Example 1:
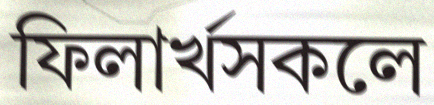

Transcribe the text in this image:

ফিলাৰ্খসকলে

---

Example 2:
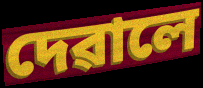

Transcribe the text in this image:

দেৱালে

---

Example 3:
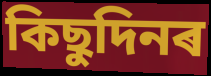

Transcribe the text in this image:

কিছুদিনৰ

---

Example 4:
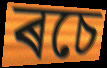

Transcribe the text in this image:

ৰচে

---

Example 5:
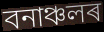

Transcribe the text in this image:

বনাঞ্চলৰ